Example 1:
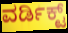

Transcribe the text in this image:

ವರ್ಡಿಕ್ಟ್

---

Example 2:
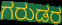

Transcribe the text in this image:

ಗರುಡರ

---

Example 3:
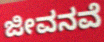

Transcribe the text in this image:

ಜೀವನವೆ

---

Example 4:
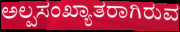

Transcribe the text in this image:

ಅಲ್ಪಸಂಖ್ಯಾತರಾಗಿರುವ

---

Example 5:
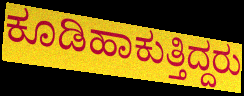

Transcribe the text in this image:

ಕೂಡಿಹಾಕುತ್ತಿದ್ದರು